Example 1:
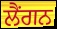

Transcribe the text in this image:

ਲੈਂਗਨ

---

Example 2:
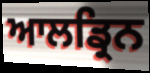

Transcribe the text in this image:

ਆਲਡ੍ਰਿਨ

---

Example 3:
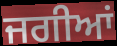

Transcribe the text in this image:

ਜਗੀਆਂ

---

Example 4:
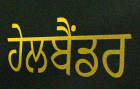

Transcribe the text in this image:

ਹੇਲਬੈਂਡਰ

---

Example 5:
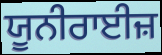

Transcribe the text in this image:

ਯੂਨੀਰਾਈਜ਼